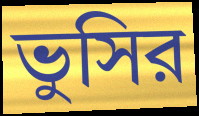
ভুসির